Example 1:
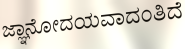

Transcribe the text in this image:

ಜ್ಞಾನೋದಯವಾದಂತಿದೆ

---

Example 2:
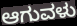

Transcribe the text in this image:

ಆಗುವಳು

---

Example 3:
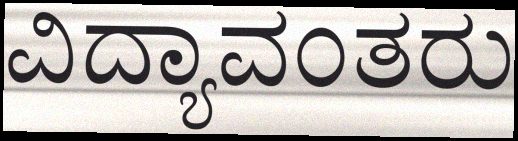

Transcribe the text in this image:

ವಿದ್ಯಾವಂತರು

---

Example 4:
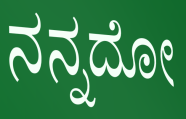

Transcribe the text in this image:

ನನ್ನದೋ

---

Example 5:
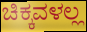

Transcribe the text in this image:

ಚಿಕ್ಕವಳಲ್ಲ